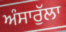
ਅੰਸਾਰੁੱਲਾ